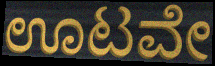
ಊಟವೇ